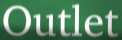
Outlet